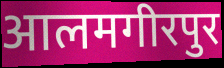
आलमगीरपुर